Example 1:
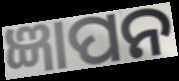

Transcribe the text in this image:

ଜ୍ଞାପନ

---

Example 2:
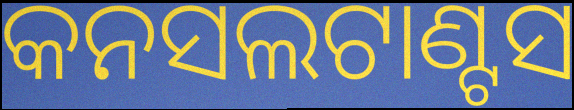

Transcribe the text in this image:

କନସଲଟାଣ୍ଟସ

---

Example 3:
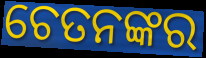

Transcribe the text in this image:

ଚେତନଙ୍କର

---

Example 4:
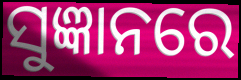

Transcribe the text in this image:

ସୁଜ୍ଞାନରେ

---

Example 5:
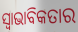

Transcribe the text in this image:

ସ୍ୱାଭାବିକତାର